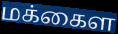
மக்கைள